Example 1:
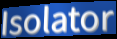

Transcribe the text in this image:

Isolator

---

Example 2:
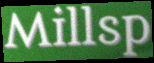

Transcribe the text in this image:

Millsp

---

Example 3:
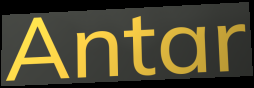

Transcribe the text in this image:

Antar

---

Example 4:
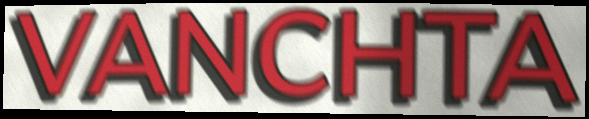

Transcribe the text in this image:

VANCHTA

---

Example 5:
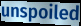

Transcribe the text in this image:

unspoiled